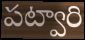
పట్వారి